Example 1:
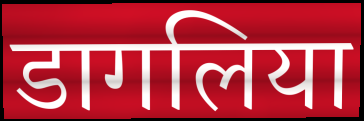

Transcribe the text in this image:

डागलिया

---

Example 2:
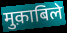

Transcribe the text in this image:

मुक़ाबिले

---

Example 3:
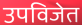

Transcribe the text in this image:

उपविजेत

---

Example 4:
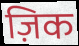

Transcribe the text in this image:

ज़िक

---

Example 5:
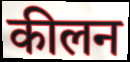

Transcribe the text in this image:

कीलन